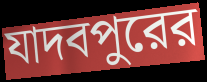
যাদবপুরের